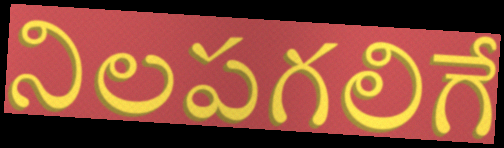
నిలపగలిగే